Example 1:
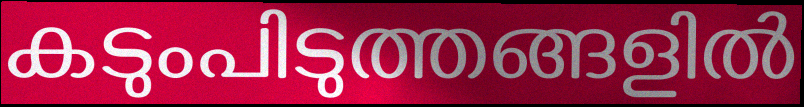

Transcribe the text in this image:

കടുംപിടുത്തങ്ങളിൽ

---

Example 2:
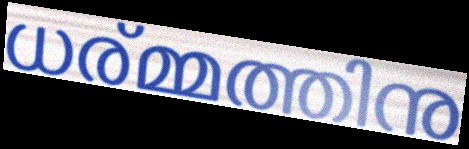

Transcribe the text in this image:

ധര്മ്മത്തിനു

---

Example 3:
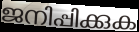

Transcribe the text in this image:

ജനിപ്പിക്കുക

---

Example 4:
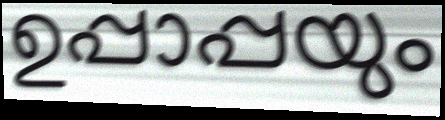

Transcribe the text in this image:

ഉപ്പാപ്പയും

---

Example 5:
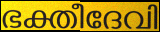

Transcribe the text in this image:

ഭക്തീദേവി